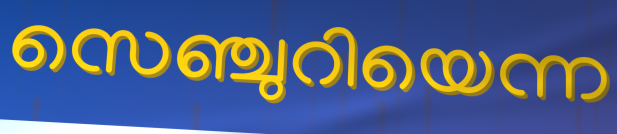
സെഞ്ചുറിയെന്ന